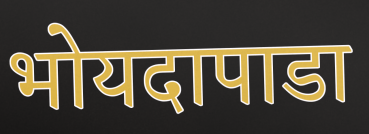
भोयदापाडा